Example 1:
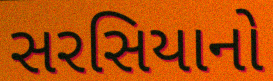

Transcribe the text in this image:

સરસિયાનો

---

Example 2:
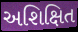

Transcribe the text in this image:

અશિક્ષિત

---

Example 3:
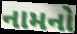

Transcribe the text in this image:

નામનો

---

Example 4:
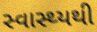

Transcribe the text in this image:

સ્વાસ્થ્યથી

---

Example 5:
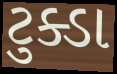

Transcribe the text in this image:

ટુક્ડા